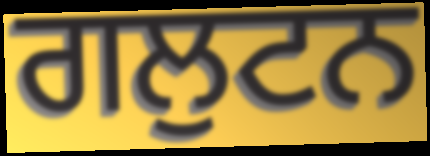
ਗਲੁਟਨ